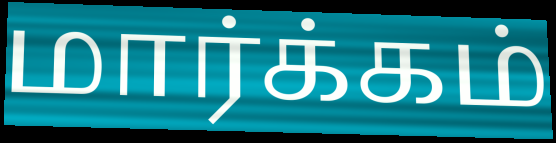
மார்க்கம்